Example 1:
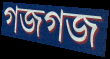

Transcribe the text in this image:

গজগজ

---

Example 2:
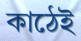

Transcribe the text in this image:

কাঠেই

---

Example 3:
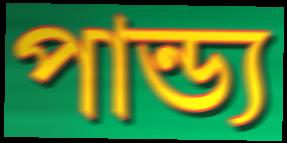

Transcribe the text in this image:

পান্ড্য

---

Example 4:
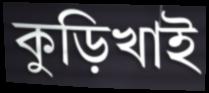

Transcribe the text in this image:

কুড়িখাই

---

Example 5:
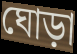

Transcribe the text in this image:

ঘোড়া